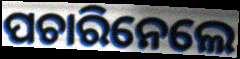
ପଚାରିନେଲେ